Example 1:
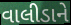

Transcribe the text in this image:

વાલીડાને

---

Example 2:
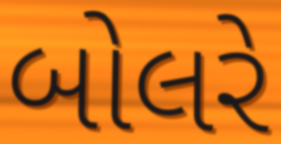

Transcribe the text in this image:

બોલરે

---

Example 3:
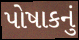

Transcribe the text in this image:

પોષાકનું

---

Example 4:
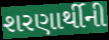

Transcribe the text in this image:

શરણાર્થીની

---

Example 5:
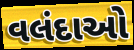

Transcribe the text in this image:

વલંદાઓ